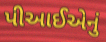
પીઆઈએનું